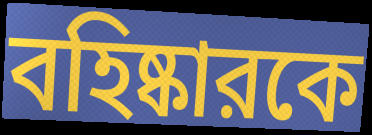
বহিষ্কারকে